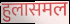
हुलासमल